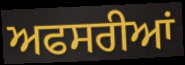
ਅਫਸਰੀਆਂ